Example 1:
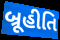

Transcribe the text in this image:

બ્રૂહીતિ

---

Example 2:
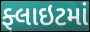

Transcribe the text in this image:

ફ્લાઇટમાં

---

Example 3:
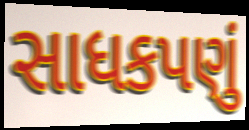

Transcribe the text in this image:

સાધકપણું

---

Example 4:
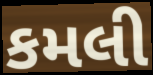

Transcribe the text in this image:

કમલી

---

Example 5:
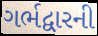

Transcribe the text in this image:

ગર્ભદ્વારની